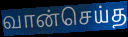
வான்செய்த